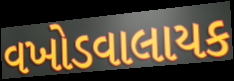
વખોડવાલાયક